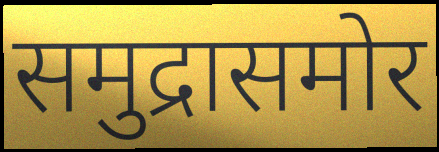
समुद्रासमोर